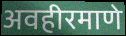
अवहीरमाणे